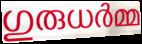
ഗുരുധർമ്മ